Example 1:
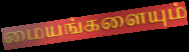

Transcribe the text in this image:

மையங்களையும்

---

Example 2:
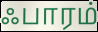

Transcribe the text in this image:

ஃபாரம்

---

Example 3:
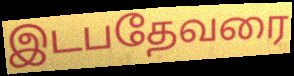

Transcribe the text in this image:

இடபதேவரை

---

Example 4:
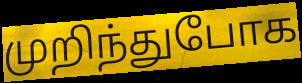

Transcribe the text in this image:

முறிந்துபோக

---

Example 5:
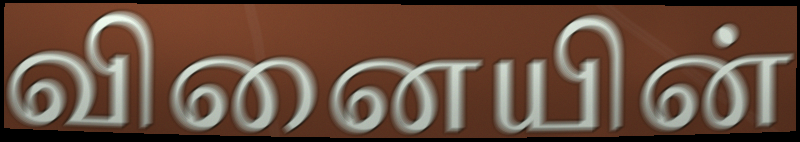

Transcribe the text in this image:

வினையின்